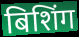
बिशिंग